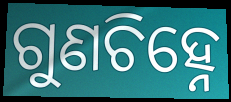
ଗୁଣଚିହ୍ନେ